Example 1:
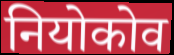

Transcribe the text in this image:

नियोकोव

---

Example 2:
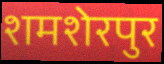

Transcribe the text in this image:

शमशेरपुर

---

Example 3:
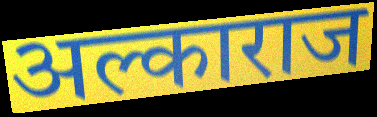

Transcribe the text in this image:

अल्काराज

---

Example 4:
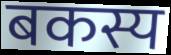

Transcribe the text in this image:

बकस्य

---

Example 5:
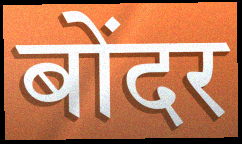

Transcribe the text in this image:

बोंदर